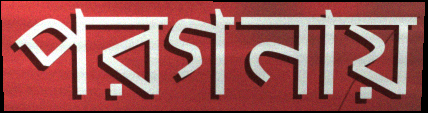
পরগনায়